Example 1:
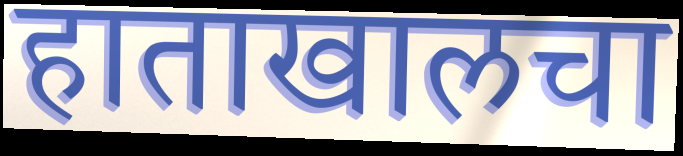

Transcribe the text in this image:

हाताखालचा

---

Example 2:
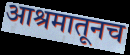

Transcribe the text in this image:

आश्रमातूनच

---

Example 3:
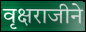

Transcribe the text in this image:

वृक्षराजीने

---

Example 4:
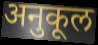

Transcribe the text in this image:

अनुकूल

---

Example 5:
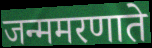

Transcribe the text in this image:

जन्ममरणाते